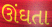
ઊંઘતા